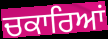
ਚਕਾਰਿਆਂ